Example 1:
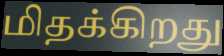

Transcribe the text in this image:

மிதக்கிறது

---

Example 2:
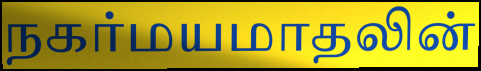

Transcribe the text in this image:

நகர்மயமாதலின்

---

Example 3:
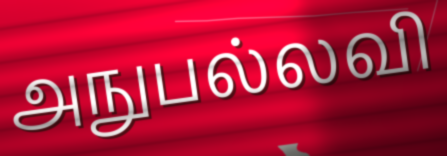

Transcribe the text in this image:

அநுபல்லவி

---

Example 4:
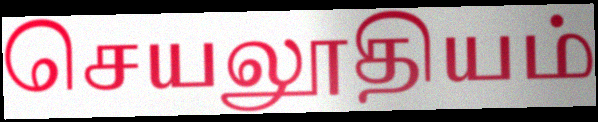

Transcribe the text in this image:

செயலூதியம்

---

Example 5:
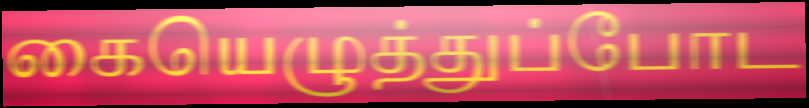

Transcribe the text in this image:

கையெழுத்துப்போட